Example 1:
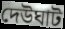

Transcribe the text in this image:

দেউঘাট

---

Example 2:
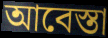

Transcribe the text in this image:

আবেস্তা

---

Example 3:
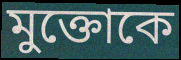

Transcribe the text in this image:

মুক্তোকে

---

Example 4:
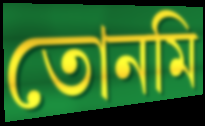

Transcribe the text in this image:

তোনমি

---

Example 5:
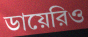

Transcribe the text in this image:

ডায়েরিও